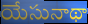
యేసునాథా